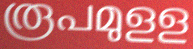
രൂപമുളള